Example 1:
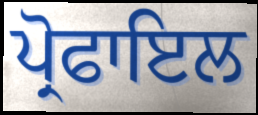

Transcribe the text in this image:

ਪ੍ਰੋਫਾਇਲ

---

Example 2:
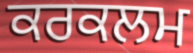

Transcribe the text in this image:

ਕਰਕਲਮ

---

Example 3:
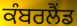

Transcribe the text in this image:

ਕੰਬਰਲੈਂਡ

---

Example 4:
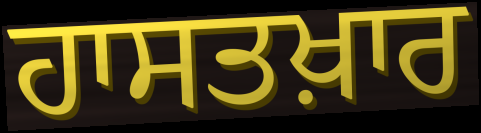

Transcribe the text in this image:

ਹਾਸਤਖ਼ਾਰ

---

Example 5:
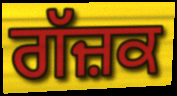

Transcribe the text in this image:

ਗੱਜ਼ਕ